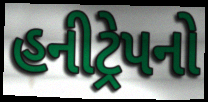
હનીટ્રેપનો